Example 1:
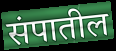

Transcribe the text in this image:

संपातील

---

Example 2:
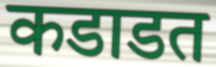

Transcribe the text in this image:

कडाडत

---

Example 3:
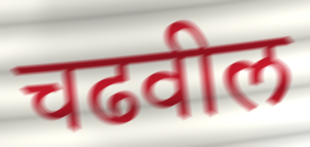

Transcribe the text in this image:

चढवील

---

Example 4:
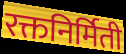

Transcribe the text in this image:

रक्तनिर्मिती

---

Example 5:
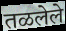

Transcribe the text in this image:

तळलेले